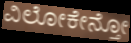
ವಿಲೋಕೇನ್ತೋ